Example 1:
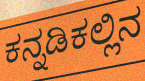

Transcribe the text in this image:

ಕನ್ನಡಿಕಲ್ಲಿನ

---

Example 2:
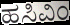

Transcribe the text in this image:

ಹಸಿವಿಂ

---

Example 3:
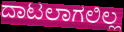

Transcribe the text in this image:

ದಾಟಲಾಗಲಿಲ್ಲ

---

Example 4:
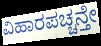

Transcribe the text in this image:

ವಿಹಾರಪಚ್ಚನ್ತೇ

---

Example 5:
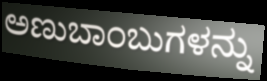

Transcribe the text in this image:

ಅಣುಬಾಂಬುಗಳನ್ನು